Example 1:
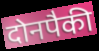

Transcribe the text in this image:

दोनपैकी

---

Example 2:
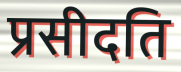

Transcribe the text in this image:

प्रसीदति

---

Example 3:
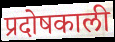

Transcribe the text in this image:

प्रदोषकाली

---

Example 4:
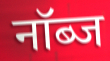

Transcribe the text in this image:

नॉब्ज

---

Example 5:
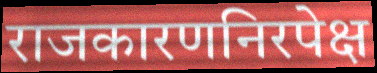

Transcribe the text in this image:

राजकारणनिरपेक्ष